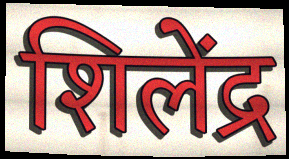
शिलेंद्र